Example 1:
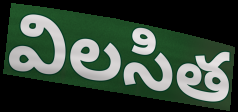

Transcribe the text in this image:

విలసిత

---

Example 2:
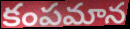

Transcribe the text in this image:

కంపమాన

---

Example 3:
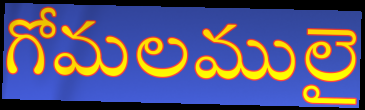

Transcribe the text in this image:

గోమలములై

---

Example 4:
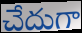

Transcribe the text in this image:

చేదుగా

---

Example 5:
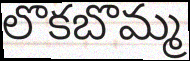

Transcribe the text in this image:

లొకబొమ్మ